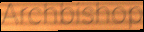
Archbishop